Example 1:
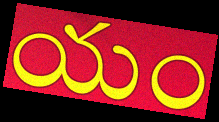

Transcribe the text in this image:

యం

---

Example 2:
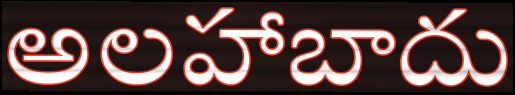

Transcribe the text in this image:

అలహాబాదు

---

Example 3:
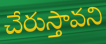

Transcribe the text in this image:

చేరుస్తావని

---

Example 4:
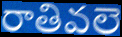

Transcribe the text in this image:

రాతివలె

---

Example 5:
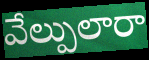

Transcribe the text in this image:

వేల్పులారా